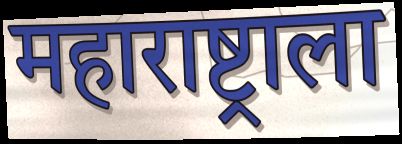
महाराष्ट्राला